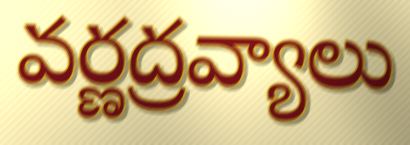
వర్ణద్రవ్యాలు